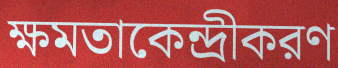
ক্ষমতাকেন্দ্রীকরণ